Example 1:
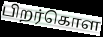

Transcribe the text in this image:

பிறர்கொள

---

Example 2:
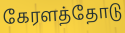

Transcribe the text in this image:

கேரளத்தோடு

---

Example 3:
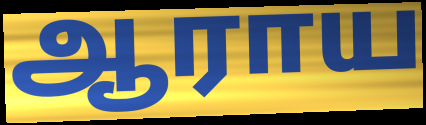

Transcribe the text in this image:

ஆராய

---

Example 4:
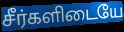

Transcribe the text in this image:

சீர்களிடையே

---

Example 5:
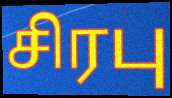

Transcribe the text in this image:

சிரபு